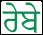
ਰੇਬੇ